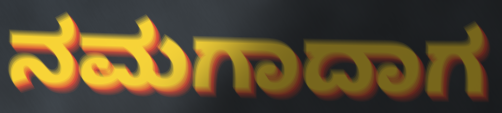
ನಮಗಾದಾಗ